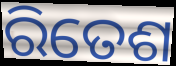
ରିତେଶ